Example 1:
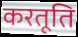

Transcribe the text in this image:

करतूति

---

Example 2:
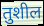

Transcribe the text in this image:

तुशील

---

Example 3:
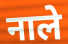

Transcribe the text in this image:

नाले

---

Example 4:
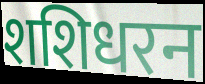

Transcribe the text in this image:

शशिधरन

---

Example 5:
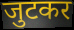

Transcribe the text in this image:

जुटकर